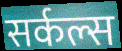
सर्कल्‍स